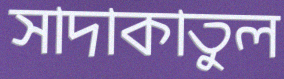
সাদাকাতুল